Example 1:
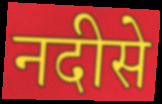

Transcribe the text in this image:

नदीसे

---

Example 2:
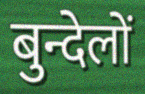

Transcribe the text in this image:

बुन्देलों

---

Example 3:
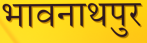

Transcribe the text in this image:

भावनाथपुर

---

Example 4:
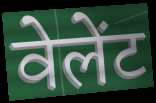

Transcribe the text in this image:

वेलेंट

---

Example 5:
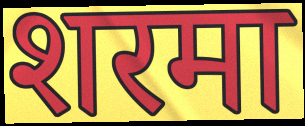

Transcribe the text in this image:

शरमा